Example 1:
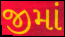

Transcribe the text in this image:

જીમાં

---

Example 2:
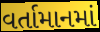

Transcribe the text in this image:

વર્તામાનમાં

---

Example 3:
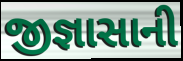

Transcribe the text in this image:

જીજ્ઞાસાની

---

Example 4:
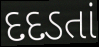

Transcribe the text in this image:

દદડતાં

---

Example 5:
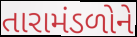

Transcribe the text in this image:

તારામંડળોને